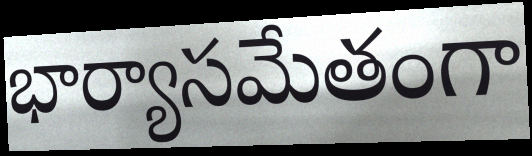
భార్యాసమేతంగా